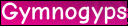
Gymnogyps